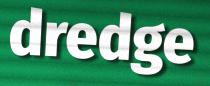
dredge